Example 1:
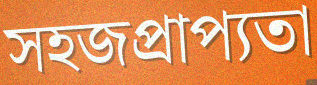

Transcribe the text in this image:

সহজপ্রাপ্যতা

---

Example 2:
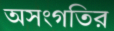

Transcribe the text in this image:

অসংগতির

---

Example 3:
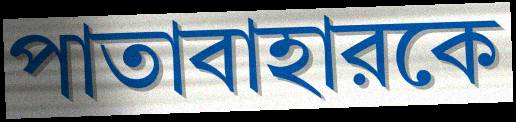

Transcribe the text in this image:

পাতাবাহারকে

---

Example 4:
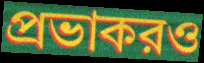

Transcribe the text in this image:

প্রভাকরও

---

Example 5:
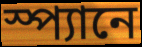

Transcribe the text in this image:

স্প্যানে